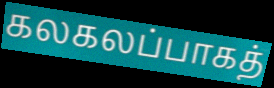
கலகலப்பாகத்